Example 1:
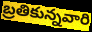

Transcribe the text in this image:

బ్రతికున్నవారి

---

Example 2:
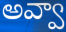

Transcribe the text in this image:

అవ్వా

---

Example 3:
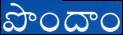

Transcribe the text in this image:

పొందాం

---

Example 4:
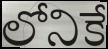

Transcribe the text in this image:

లోనికే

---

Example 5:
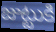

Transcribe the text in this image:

జుట్టుకి